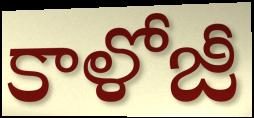
కాళోజీ